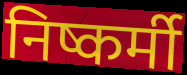
निष्कर्मी